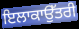
ਇਲਾਕਾਉੱਤਰੀ